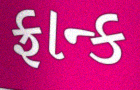
ફ્રાન્ક